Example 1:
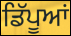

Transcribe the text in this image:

ਡਿੱਪੂਆਂ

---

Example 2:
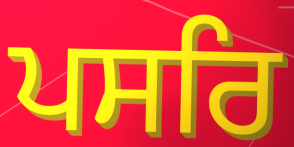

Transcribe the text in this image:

ਪਸਰਿ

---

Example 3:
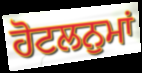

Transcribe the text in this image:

ਹੋਟਲਨੁਮਾਂ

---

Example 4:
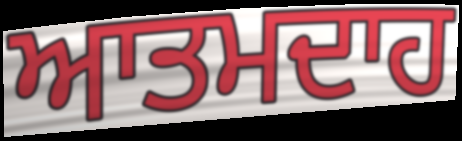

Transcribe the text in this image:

ਆਤਮਦਾਹ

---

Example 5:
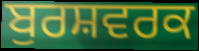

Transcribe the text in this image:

ਬੁਰਸ਼ਵਰਕ